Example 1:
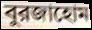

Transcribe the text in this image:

বুরজাহোম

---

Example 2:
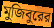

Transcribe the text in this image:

মুজিবুরের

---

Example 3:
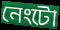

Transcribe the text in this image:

নেংটো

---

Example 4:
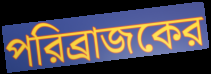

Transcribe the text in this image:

পরিব্রাজকের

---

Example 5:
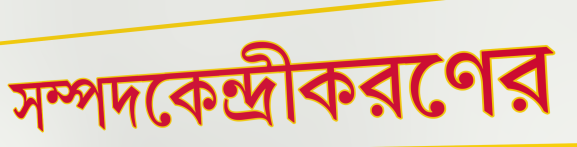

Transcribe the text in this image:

সম্পদকেন্দ্রীকরণের